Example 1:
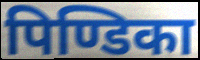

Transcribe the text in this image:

पिण्डिका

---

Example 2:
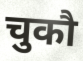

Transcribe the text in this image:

चुकौ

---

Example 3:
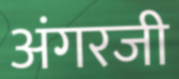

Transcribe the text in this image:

अंगरजी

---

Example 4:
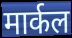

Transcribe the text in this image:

मार्कल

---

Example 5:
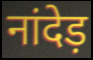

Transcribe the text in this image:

नांदेड़